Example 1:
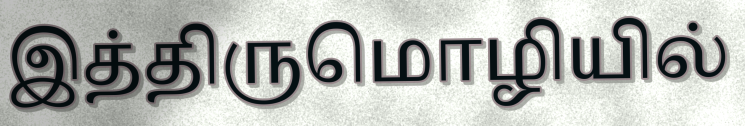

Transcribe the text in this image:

இத்திருமொழியில்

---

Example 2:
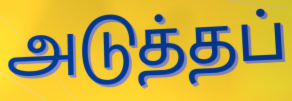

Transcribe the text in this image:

அடுத்தப்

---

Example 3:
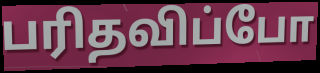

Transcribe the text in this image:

பரிதவிப்போ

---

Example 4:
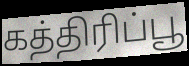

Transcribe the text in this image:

கத்திரிப்பூ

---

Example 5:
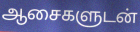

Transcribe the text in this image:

ஆசைகளுடன்